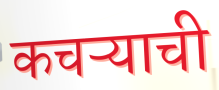
कचऱ्याची